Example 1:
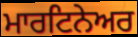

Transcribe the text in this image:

ਮਾਰਟਿਨੇਅਰ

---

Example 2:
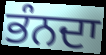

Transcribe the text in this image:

ਭੰਨਦਾ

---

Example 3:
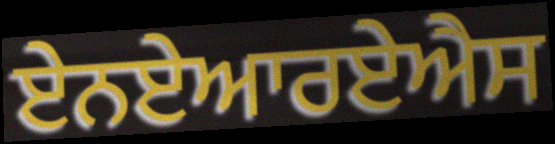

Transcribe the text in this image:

ਏਨਏਆਰਏਐਸ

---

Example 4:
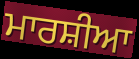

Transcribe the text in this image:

ਮਾਰਸ਼ੀਆ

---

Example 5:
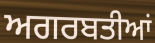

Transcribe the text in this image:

ਅਗਰਬਤੀਆਂ